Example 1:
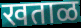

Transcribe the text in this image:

खताळ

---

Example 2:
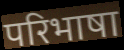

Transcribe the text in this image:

परिभाषा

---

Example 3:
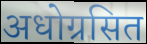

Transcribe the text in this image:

अधोग्रसित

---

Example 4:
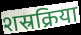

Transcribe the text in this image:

शस्रक्रिया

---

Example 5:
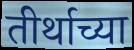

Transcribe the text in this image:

तीर्थाच्या